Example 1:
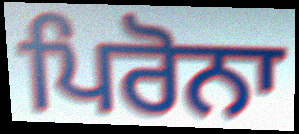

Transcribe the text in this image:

ਪਿਰੋਨਾ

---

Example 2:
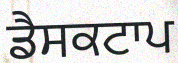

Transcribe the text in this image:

ਡੈਸਕਟਾਪ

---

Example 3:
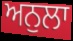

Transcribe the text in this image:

ਅਨੁਲਾ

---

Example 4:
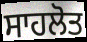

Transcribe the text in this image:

ਸਾਹਲੋਤ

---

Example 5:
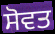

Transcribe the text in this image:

ਸੋਵਤ